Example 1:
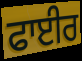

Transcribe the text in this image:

ਫਾਈਰ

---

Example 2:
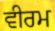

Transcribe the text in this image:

ਵੀਰਮ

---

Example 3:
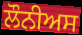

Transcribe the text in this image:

ਲੌਨੀਅਸ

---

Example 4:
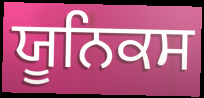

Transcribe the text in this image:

ਯੂਨਿਕਸ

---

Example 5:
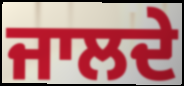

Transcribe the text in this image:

ਜਾਲਦੇ